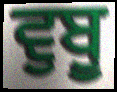
ਵੁਬੂ